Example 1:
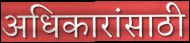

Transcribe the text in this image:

अधिकारांसाठी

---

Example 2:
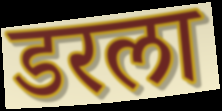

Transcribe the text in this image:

डरला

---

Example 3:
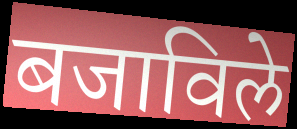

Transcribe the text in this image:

बजाविले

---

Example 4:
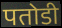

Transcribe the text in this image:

पतोडी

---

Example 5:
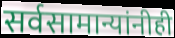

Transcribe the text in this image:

सर्वसामान्यांनीही